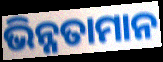
ଭିନ୍ନତାମାନ